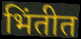
भिंतीत